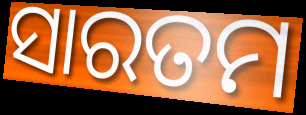
ସାରତମ